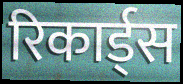
रिकार्ड्स